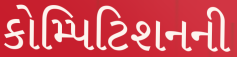
કોમ્પિટિશનની